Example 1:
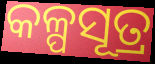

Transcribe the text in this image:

କଳ୍ପସୂତ୍ର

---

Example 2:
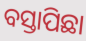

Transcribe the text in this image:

ବସ୍ତାପିଛା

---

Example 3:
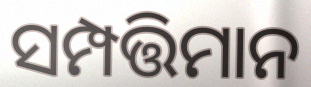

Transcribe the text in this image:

ସମ୍ପତ୍ତିମାନ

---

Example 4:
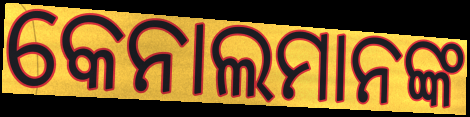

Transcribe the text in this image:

କେନାଲମାନଙ୍କ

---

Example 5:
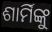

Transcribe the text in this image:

ଶାର୍ମିଙ୍କୁ